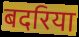
बदरिया